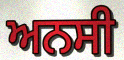
ਅਨਸੀ